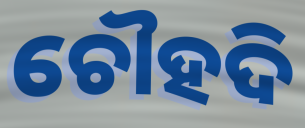
ଚୌହଦି